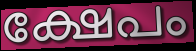
ക്ഷേപം